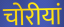
चोरीयां